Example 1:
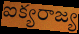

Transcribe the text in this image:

ఐక్యరాజ్య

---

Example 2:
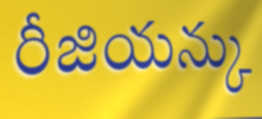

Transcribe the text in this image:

రీజియన్కు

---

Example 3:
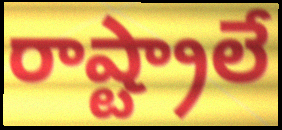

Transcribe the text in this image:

రాష్ట్రాలే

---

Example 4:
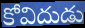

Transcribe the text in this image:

కోవిదుడు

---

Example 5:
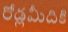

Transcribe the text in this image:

రోడ్లమీదికి